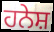
ਹਨੇਸ਼